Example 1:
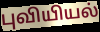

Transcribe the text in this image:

புவியியல்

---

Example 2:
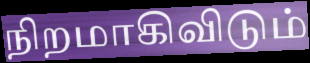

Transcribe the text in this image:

நிறமாகிவிடும்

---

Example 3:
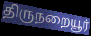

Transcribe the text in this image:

திருநறையூர்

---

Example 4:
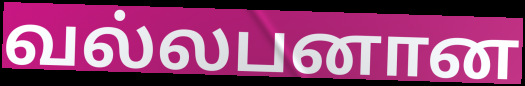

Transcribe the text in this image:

வல்லபனான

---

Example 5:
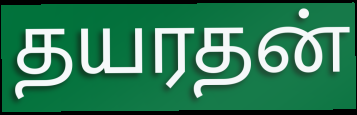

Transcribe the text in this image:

தயரதன்